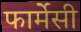
फार्मेसी